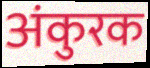
अंकुरक